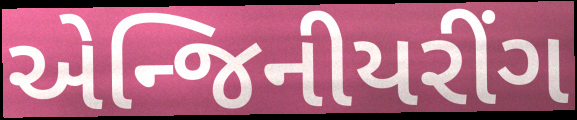
એન્જિનીયરીંગ